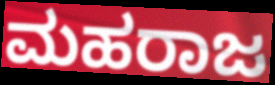
ಮಹರಾಜ